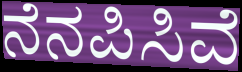
ನೆನಪಿಸಿವೆ